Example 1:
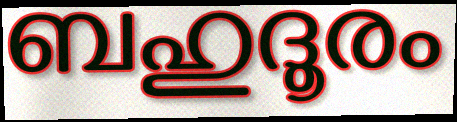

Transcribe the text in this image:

ബഹുദൂരം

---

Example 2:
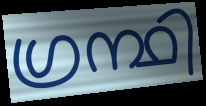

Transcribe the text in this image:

ഗ്രന്ഥി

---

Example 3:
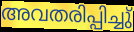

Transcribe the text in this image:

അവതരിപ്പിച്ചു്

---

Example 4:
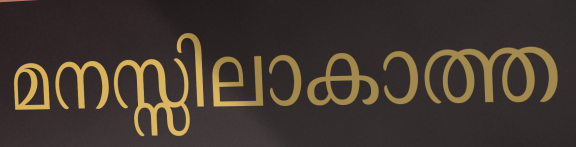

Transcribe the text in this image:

മനസ്സിലാകാത്ത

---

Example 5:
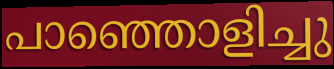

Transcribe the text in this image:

പാഞ്ഞൊളിച്ചു